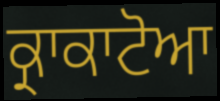
ਕ੍ਰਾਕਾਟੋਆ